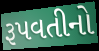
રૂપવતીનો